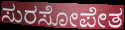
ಸುರಸೋಪೇತ